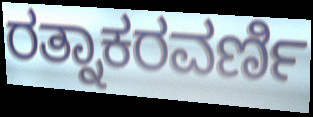
ರತ್ನಾಕರವರ್ಣಿ